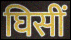
घिसीं